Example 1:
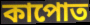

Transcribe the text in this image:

কাপোত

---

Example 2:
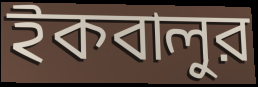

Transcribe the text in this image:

ইকবালুর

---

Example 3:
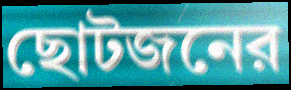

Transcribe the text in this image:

ছোটজনের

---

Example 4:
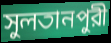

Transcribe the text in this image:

সুলতানপুরী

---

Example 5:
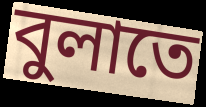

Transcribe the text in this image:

বুলাতে